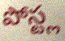
పోస్ట్ల